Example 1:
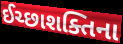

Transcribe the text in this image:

ઈચ્છાશક્તિના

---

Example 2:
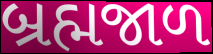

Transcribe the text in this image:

બ્રહ્મજાળ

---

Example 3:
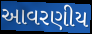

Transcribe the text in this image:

આવરણીય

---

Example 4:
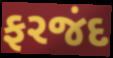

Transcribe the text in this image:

ફરજંદ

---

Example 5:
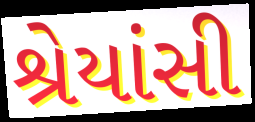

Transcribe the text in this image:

શ્રેયાંસી